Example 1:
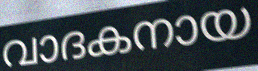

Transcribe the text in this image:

വാദകനായ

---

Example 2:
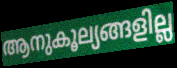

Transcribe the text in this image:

ആനുകൂല്യങ്ങളില്ല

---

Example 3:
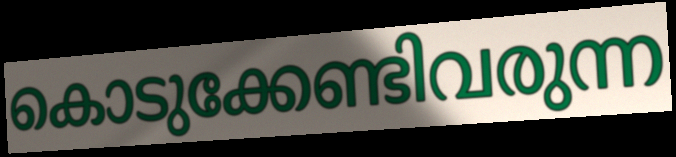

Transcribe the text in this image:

കൊടുക്കേണ്ടിവരുന്ന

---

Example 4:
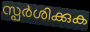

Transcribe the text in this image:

സ്പർശിക്കുക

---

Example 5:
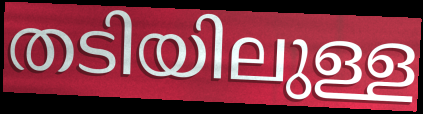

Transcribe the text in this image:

തടിയിലുള്ള